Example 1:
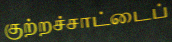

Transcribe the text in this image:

குற்றச்சாட்டைப்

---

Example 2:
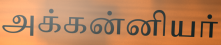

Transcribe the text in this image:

அக்கன்னியர்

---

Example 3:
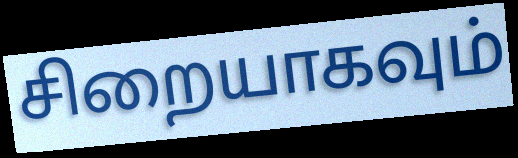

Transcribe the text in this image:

சிறையாகவும்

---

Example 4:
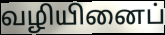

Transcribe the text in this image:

வழியினைப்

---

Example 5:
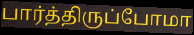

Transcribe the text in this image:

பார்த்திருப்போமா